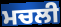
ਮਚਲੀ